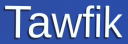
Tawfik